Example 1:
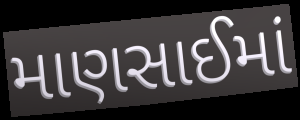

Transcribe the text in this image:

માણસાઈમાં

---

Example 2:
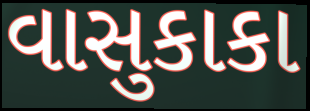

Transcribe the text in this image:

વાસુકાકા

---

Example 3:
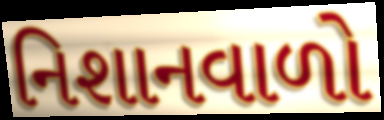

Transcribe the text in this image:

નિશાનવાળો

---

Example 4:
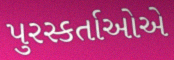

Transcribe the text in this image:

પુરસ્કર્તાઓએ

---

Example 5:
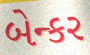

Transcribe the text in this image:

બેન્કર